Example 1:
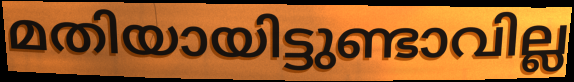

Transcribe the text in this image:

മതിയായിട്ടുണ്ടാവില്ല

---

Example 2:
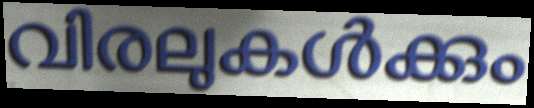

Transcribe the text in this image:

വിരലുകൾക്കും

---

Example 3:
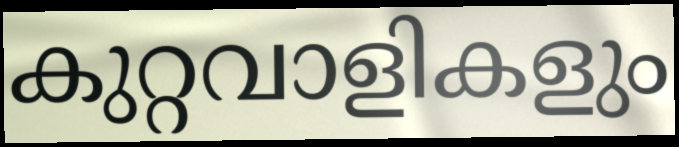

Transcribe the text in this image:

കുറ്റവാളികളും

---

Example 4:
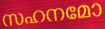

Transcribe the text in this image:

സഹനമോ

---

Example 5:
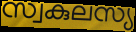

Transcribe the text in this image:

സ്വകുലസ്യ